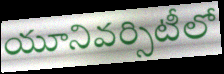
యూనివర్సిటీలో